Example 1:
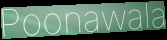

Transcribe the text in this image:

Poonawala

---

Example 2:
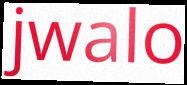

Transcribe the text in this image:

jwalo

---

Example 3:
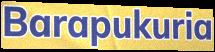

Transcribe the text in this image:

Barapukuria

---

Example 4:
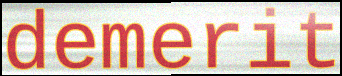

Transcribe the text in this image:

demerit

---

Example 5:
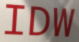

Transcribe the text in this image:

IDW